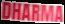
DHARMA